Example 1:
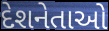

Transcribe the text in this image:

દેશનેતાઓ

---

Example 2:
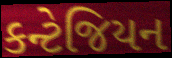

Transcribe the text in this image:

કન્ટેજિયન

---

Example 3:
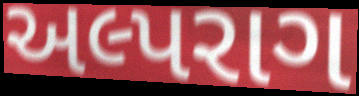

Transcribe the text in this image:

અલ્પરાગ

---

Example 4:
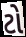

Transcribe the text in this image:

ટો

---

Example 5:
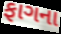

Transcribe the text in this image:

ફાગના